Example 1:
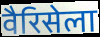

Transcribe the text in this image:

वैरिसेला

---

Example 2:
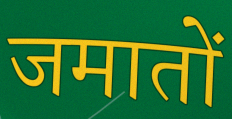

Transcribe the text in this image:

जमातों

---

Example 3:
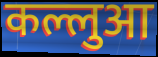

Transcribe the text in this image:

कल्लुआ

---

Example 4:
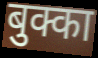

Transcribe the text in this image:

बुक्का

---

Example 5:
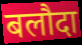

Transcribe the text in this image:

बलौदा